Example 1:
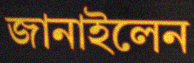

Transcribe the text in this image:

জানাইলেন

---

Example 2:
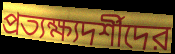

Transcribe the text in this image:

প্রত্যক্ষ্যদর্শীদের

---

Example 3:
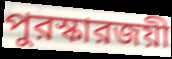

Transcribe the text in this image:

পুরস্কারজয়ী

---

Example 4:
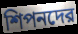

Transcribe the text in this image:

শিপনদের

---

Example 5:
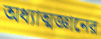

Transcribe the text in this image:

অধ্যাত্মজ্ঞানের